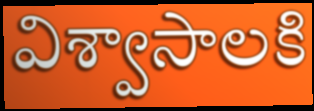
విశ్వాసాలకి